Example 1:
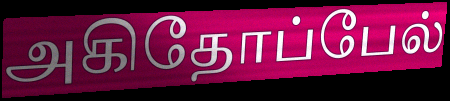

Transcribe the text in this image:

அகிதோப்பேல்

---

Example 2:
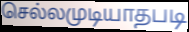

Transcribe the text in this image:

செல்லமுடியாதபடி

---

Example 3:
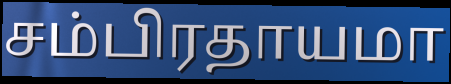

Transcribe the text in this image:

சம்பிரதாயமா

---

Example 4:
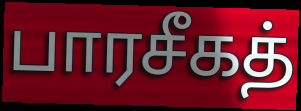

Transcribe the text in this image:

பாரசீகத்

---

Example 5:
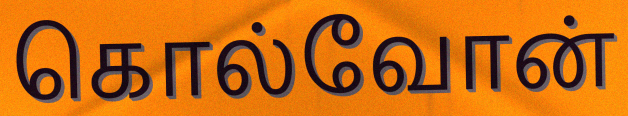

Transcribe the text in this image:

கொல்வோன்